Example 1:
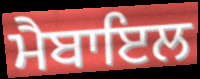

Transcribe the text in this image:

ਮੈਬਾਇਲ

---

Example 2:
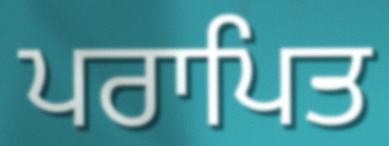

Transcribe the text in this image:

ਪਰਾਪਿਤ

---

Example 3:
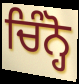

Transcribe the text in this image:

ਚਿੰਨ੍ਹੋ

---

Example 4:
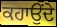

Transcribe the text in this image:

ਕਹਾਉਂਦੇ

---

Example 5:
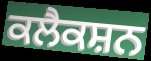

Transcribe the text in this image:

ਕਲੈਕਸ਼ਨ